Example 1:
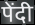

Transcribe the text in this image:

पेंदी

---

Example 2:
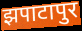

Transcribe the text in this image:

झपाटापुर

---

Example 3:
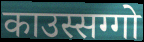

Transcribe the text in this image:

काउस्सग्गो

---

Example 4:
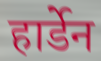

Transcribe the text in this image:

हार्डेन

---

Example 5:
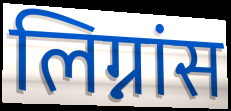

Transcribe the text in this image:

लिग्नांस